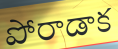
పోరాడాక